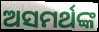
ଅସମର୍ଥଙ୍କ